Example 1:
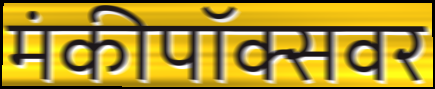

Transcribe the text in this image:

मंकीपॉक्सवर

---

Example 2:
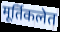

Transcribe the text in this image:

मूर्तिकलेत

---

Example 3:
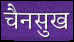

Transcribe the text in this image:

चैनसुख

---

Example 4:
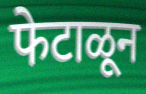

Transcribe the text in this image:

फेटाळून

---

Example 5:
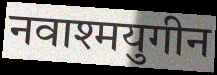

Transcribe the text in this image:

नवाश्मयुगीन